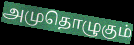
அமுதொழுகும்